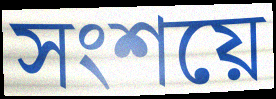
সংশয়ে